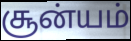
சூன்யம்